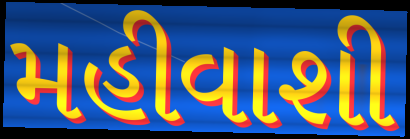
મહીવાશી